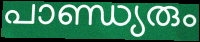
പാണ്ഡ്യരും